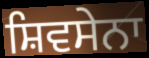
ਸ਼ਿਵਸੇਨਾ